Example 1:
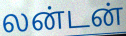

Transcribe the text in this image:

லன்டன்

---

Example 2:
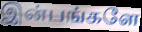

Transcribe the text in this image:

இன்பங்களே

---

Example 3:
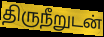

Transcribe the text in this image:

திருநீறுடன்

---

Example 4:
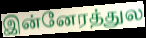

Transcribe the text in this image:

இன்னேரத்துல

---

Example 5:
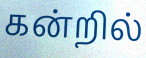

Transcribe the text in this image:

கன்றில்